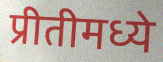
प्रीतीमध्ये